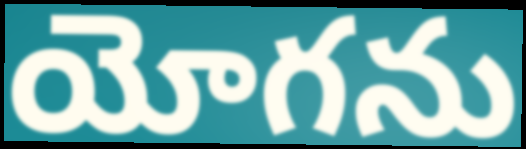
యోగను